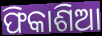
ଫିକାଶିଆ